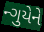
ન્ગુયેને